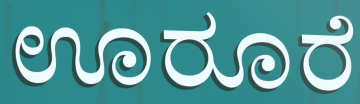
ಊರೂರೆ